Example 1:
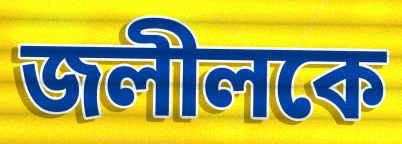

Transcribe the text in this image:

জলীলকে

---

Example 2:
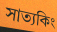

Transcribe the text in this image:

সাত্যকিং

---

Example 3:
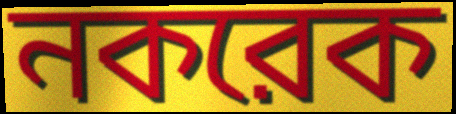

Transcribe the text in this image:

নকরেক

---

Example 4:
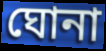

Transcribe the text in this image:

ঘোনা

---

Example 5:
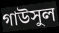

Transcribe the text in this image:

গাউসুল